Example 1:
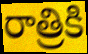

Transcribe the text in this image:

రాత్రికి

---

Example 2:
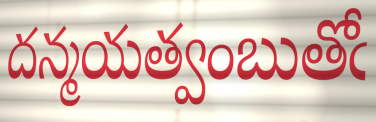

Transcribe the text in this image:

దన్మయత్వంబుతోఁ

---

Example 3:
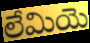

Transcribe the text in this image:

లేమియె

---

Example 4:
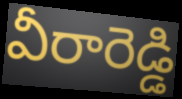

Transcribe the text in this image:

వీరారెడ్డి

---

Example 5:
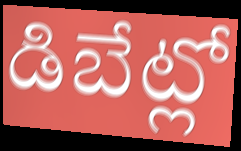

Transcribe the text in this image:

డిబేట్లో